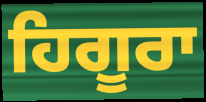
ਹਿਗੂਰਾ